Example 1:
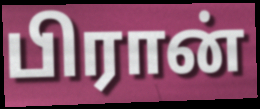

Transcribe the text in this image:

பிரான்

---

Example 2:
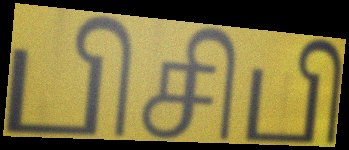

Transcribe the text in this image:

பிசிபி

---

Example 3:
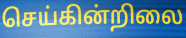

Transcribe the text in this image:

செய்கின்றிலை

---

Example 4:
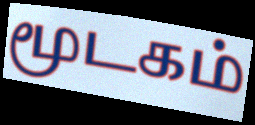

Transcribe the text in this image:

மூடகம்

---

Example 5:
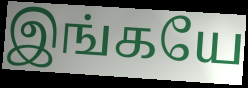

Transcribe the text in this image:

இங்கயே